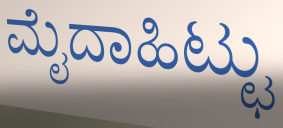
ಮೈದಾಹಿಟ್ಟು